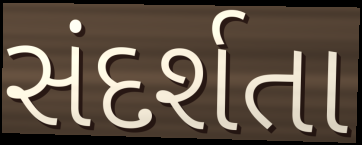
સંદર્શતા